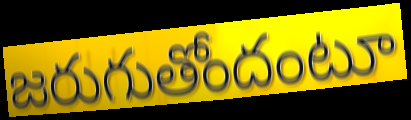
జరుగుతోందంటూ